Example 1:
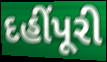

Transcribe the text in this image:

દહીંપૂરી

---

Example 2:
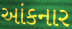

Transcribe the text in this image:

આંકનાર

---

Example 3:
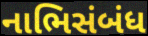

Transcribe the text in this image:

નાભિસંબંધ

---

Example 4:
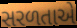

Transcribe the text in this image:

સરળતાએ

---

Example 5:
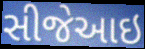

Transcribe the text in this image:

સીજેઆઇ